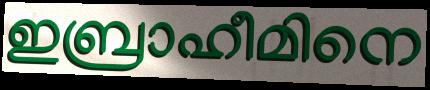
ഇബ്രാഹീമിനെ